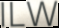
ILW